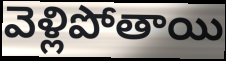
వెళ్లిపోతాయి